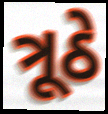
ત્રૂઠે